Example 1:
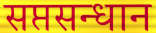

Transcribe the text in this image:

सप्तसन्धान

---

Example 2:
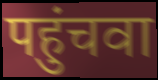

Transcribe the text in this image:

पहुंचवा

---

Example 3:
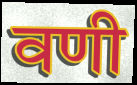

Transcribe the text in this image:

वणी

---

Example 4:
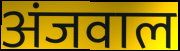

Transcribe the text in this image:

अंजवाल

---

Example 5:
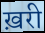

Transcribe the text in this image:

ख़री